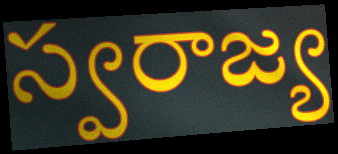
స్వరాజ్య